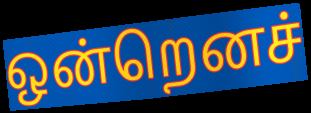
ஒன்றெனச்